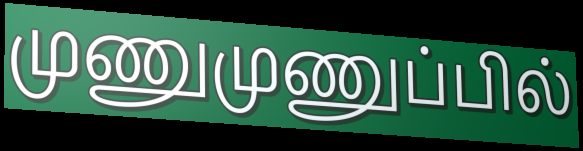
முணுமுணுப்பில்